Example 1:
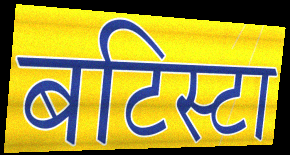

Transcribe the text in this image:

बटिस्टा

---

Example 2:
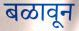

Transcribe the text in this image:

बळावून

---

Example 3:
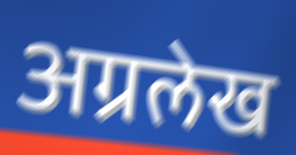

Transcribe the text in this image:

अग्रलेख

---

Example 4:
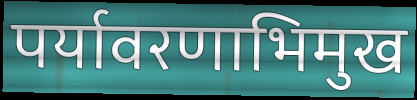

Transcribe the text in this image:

पर्यावरणाभिमुख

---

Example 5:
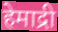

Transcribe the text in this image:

हेमाद्री